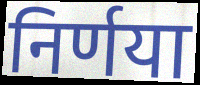
निर्णया